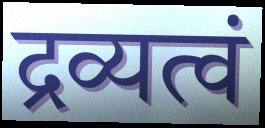
द्रव्यत्वं